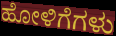
ಹೋಳಿಗೆಗಳು